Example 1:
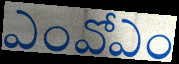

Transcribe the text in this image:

ఎంవోఎం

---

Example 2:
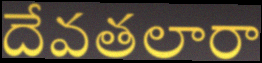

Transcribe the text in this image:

దేవతలారా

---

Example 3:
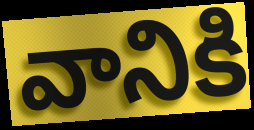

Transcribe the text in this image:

వానికి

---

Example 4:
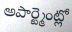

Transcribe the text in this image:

అపార్ట్మెంట్లో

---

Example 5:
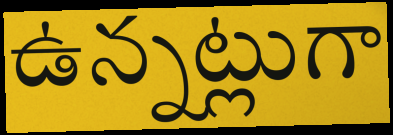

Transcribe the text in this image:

ఉన్నట్లుగా